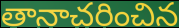
తానాచరించిన